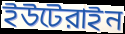
ইউটেরাইন